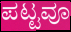
ಪಟ್ಟವೂ